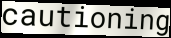
cautioning